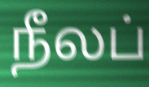
நீலப்